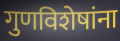
गुणविशेषांना